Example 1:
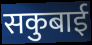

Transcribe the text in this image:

सकुबाई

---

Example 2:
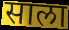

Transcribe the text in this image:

साला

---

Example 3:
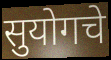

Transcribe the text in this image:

सुयोगचे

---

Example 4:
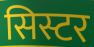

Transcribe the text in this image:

सिस्टर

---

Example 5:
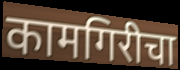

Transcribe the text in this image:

कामगिरीचा